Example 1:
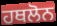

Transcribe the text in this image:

ਹਥਲੋਨ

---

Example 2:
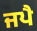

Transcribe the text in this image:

ਜਪੈ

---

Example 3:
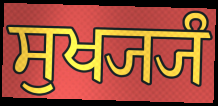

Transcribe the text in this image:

ਸੁਖ੍ਯ੍ਯੰ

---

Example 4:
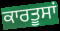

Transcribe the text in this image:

ਕਾਰਤੂਸਾਂ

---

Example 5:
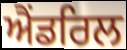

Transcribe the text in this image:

ਐਂਡਰਿਲ